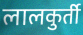
लालकुर्ती